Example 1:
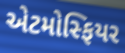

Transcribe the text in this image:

એટમોસ્ફિયર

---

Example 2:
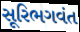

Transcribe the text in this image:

સૂરિભગવંત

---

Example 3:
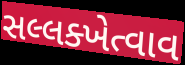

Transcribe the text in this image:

સલ્લક્ખેત્વાવ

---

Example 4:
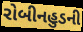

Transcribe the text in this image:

રોબીનહુડની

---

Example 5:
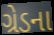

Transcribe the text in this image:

ગ્રેડના